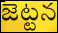
జెట్టన